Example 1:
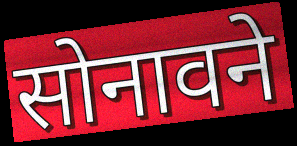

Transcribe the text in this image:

सोनावने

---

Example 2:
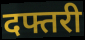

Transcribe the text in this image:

दफ्तरी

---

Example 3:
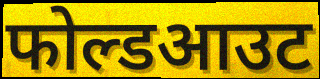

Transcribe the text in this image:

फोल्डआउट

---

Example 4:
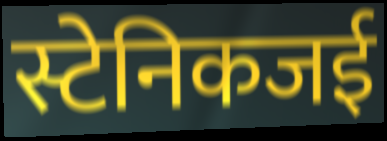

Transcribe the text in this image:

स्टेनिकजई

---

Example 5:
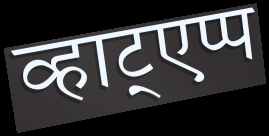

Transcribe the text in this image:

व्हाट्एप्प